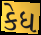
કેધ